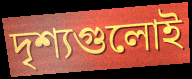
দৃশ্যগুলোই